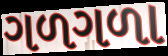
ગળગળા